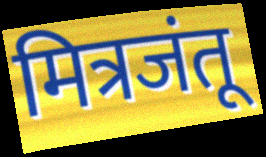
मित्रजंतू